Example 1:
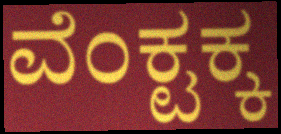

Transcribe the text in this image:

ವೆಂಕ್ಟಕ್ಕ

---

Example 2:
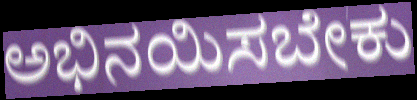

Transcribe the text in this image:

ಅಭಿನಯಿಸಬೇಕು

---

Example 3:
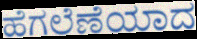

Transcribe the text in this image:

ಹೆಗಲೆಣೆಯಾದ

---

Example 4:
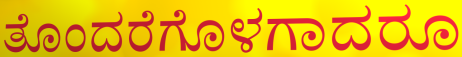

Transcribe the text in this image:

ತೊಂದರೆಗೊಳಗಾದರೂ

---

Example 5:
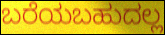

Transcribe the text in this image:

ಬರೆಯಬಹುದಲ್ಲ